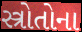
સ્ત્રોતોના